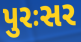
પુરઃસર